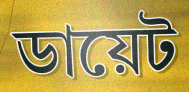
ডায়েট